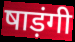
षाड़ंगी